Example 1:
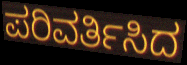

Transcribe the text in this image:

ಪರಿವರ್ತಿಸಿದ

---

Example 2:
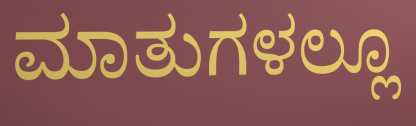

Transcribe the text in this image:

ಮಾತುಗಳಲ್ಲೂ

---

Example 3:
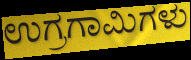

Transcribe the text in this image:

ಉಗ್ರಗಾಮಿಗಳು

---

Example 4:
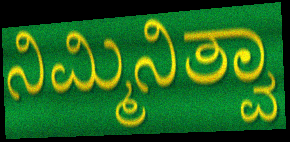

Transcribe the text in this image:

ನಿಮ್ಮಿನಿತ್ವಾ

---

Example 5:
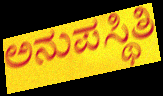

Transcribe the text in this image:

ಅನುಪಸ್ಥಿತಿ